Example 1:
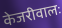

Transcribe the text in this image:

केजरीवालः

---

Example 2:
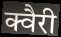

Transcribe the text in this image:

क्वैरी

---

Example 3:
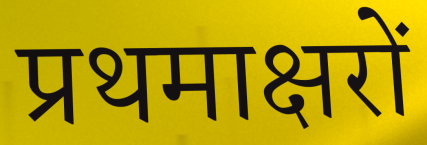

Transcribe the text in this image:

प्रथमाक्षरों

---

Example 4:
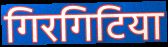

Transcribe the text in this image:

गिरगिटिया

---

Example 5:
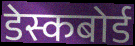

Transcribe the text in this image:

डेस्कबोर्ड